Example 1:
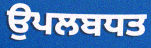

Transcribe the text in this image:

ਉਪਲਬਧਤ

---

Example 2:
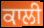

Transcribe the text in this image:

ਕਾਲੀ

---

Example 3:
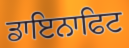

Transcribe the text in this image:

ਡਾਇਨਾਫਿਟ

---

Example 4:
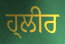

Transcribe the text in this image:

ਹ੍ਲੀਰ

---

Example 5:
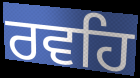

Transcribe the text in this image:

ਰਵਹਿ